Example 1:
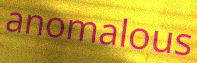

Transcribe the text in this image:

anomalous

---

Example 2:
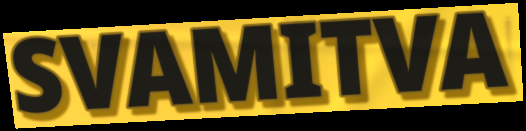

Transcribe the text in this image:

SVAMITVA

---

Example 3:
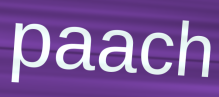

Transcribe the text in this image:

paach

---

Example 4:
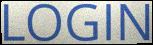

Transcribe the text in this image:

LOGIN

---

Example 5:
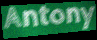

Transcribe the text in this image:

Antony